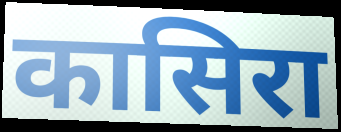
कासिरा